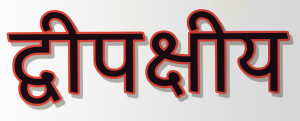
द्वीपक्षीय